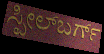
ಸ್ಪೀಲ್‌ಬರ್ಗ್